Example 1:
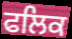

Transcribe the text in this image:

ਫਲਿਕ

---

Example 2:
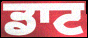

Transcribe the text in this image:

ਡਾਟ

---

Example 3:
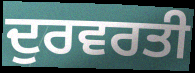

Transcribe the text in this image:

ਦੁਰਵਰਤੀ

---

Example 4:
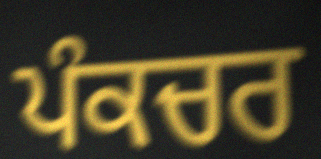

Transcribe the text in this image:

ਪੰਕਚਰ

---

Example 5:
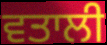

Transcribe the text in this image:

ਵਤਾਲੀ